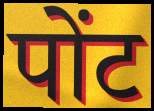
पोंट